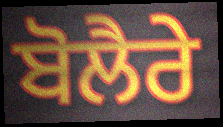
ਬੋਲੈਰੇ